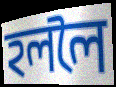
হললৈ